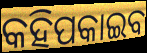
କହିପକାଇବ